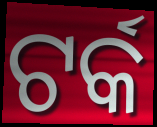
ଟର୍କ